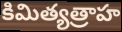
కిమిత్యత్రాహ